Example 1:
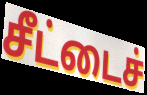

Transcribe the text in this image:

சீட்டைச்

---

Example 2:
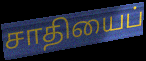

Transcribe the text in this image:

சாதியைப்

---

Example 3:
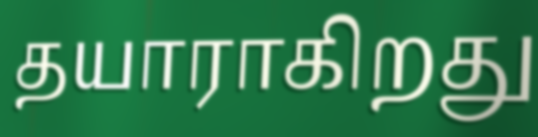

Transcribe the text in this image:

தயாராகிறது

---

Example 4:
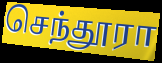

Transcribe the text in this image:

செந்தூரா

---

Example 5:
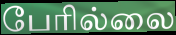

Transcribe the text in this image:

பேரில்லை